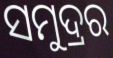
ସମୁଦ୍ରର